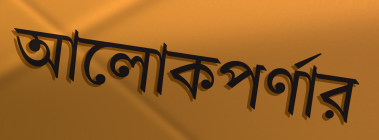
আলোকপর্ণার